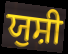
ਯੁਸ਼ੀ